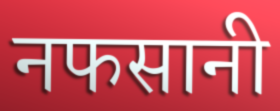
नफसानी